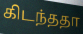
கிடந்ததா